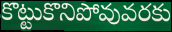
కొట్టుకొనిపోవువరకు